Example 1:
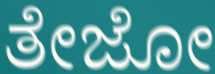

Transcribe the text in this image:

ತೇಜೋ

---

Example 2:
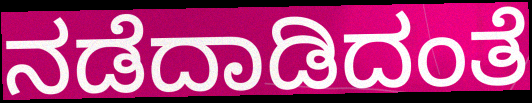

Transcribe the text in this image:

ನಡೆದಾಡಿದಂತೆ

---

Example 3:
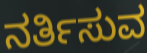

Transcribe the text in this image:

ನರ್ತಿಸುವ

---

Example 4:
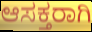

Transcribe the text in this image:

ಆಸಕ್ತರಾಗಿ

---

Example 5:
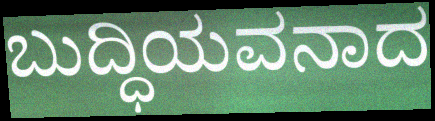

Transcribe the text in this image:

ಬುದ್ಧಿಯವನಾದ